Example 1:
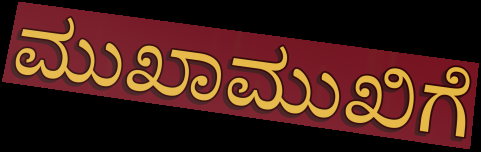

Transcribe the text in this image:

ಮುಖಾಮುಖಿಗೆ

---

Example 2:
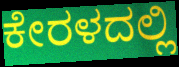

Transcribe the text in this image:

ಕೇರಳದಲ್ಲಿ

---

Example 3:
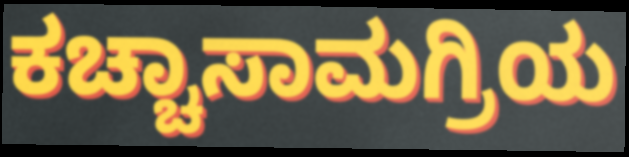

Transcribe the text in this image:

ಕಚ್ಚಾಸಾಮಗ್ರಿಯ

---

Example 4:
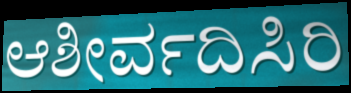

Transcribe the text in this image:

ಆಶೀರ್ವದಿಸಿರಿ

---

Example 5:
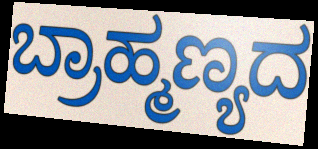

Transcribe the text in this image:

ಬ್ರಾಹ್ಮಣ್ಯದ